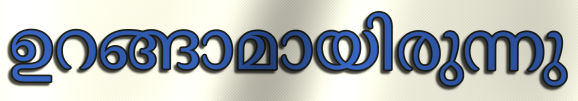
ഉറങ്ങാമായിരുന്നു